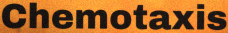
Chemotaxis